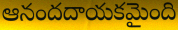
ఆనందదాయకమైంది